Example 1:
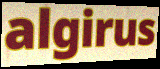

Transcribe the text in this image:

algirus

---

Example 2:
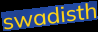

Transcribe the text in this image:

swadisth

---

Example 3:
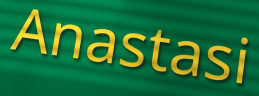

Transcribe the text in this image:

Anastasi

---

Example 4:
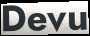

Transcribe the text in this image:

Devu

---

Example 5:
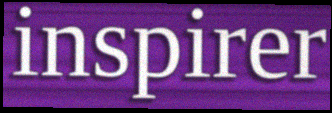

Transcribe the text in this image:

inspirer